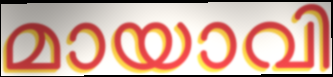
മായാവി